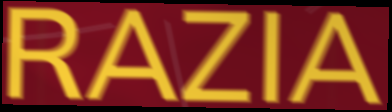
RAZIA